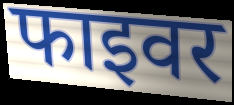
फाइवर